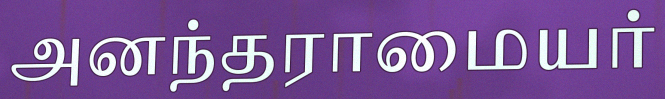
அனந்தராமையர்